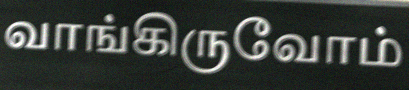
வாங்கிருவோம்